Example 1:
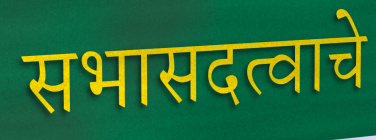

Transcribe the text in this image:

सभासदत्वाचे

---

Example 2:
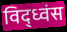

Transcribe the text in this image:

विद्ध्वंस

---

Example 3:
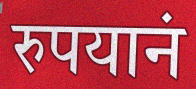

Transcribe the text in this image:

रुपयानं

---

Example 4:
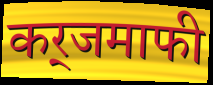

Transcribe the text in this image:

कर्जमाफी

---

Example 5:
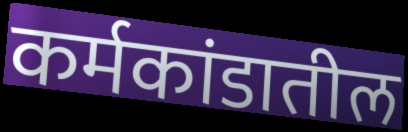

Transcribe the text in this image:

कर्मकांडातील